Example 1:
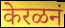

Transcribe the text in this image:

केरळनं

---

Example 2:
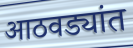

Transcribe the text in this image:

आठवड्यांत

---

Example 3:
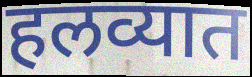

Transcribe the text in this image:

हलव्यात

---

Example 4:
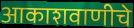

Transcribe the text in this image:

आकाशवाणीचे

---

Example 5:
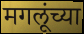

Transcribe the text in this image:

मगलूंच्या